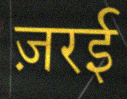
ज़रई